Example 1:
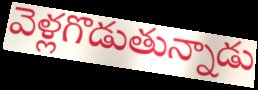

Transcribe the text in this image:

వెళ్లగొడుతున్నాడు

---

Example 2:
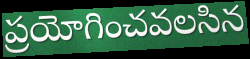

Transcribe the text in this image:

ప్రయోగించవలసిన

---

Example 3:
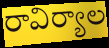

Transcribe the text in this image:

రావిర్యాల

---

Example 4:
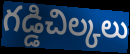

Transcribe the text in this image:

గడ్డిచిల్కలు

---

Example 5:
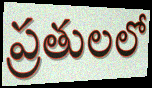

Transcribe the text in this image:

ప్రతులలో